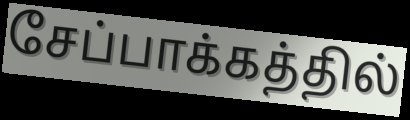
சேப்பாக்கத்தில்